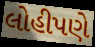
લોહીપણે